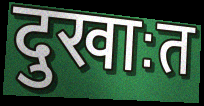
दुखाःत